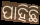
ପାହିଛି